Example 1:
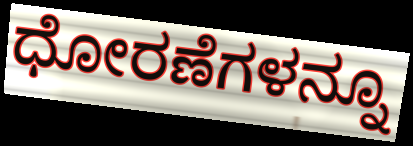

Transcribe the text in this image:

ಧೋರಣೆಗಳನ್ನೂ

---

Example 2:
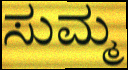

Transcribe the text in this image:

ಸುಮ್ಮ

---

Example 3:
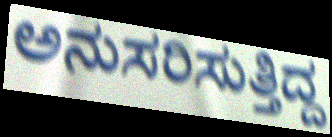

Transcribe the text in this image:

ಅನುಸರಿಸುತ್ತಿದ್ದ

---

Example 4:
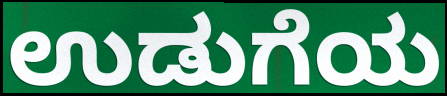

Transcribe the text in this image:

ಉಡುಗೆಯ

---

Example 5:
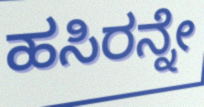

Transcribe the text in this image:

ಹಸಿರನ್ನೇ